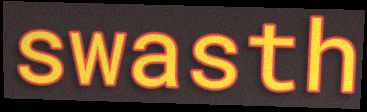
swasth